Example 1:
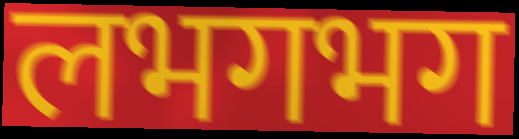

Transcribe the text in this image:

लभगभग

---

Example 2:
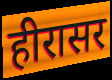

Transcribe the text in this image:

हीरासर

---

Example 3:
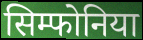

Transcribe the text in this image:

सिम्फोनिया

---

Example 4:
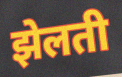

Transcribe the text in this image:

झेलती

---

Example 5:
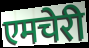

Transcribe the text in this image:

एमचेरी